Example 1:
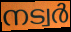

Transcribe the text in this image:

നട്വർ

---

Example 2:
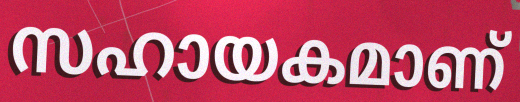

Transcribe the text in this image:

സഹായകമാണ്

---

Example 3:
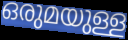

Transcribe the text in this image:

ഒരുമയുള്ള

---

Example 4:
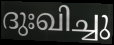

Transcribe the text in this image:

ദുഃഖിച്ചു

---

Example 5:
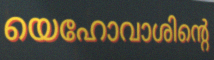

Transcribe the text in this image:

യെഹോവാശിന്റെ